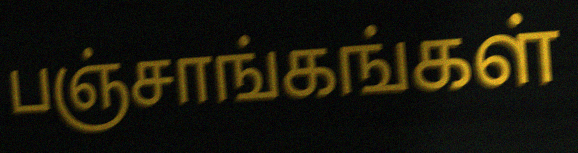
பஞ்சாங்கங்கள்